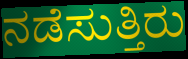
ನಡೆಸುತ್ತಿರು